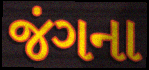
જંગના